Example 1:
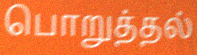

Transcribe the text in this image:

பொறுத்தல்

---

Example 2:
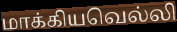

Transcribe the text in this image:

மாக்கியவெல்லி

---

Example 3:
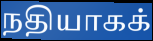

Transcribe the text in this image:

நதியாகக்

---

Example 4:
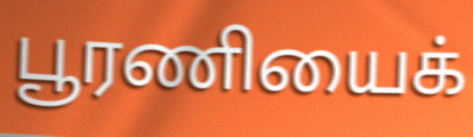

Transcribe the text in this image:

பூரணியைக்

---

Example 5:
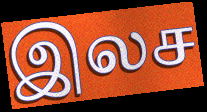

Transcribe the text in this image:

இலச